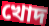
খোদ